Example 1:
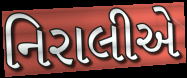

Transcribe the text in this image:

નિરાલીએ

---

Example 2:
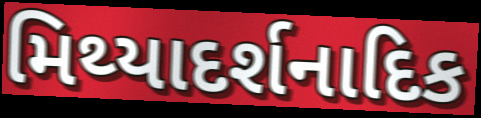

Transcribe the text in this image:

મિથ્યાદર્શનાદિક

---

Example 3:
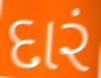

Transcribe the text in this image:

દારં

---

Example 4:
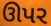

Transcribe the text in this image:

ઊપર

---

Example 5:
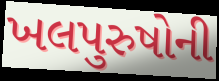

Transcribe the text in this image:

ખલપુરુષોની